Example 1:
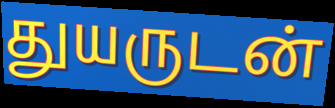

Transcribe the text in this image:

துயருடன்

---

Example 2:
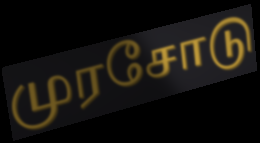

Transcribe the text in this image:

முரசோடு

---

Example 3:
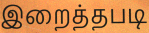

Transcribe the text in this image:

இறைத்தபடி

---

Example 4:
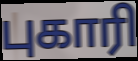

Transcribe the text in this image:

புகாரி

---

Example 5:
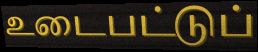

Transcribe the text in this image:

உடைபட்டுப்